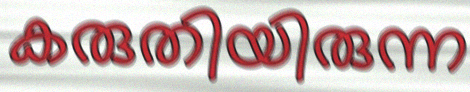
കരുതിയിരുന്ന